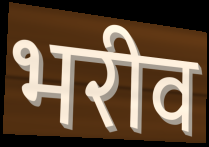
भरीव